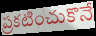
ప్రకటించుకొనే